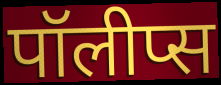
पॉलीप्स